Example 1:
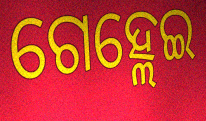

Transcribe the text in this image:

ଗେହ୍ଲେଇ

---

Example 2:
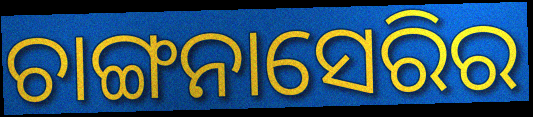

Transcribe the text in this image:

ଚାଙ୍ଗନାସେରିର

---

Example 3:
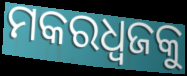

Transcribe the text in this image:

ମକରଧ୍ୱଜକୁ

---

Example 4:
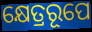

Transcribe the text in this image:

କ୍ଷେତ୍ରରୂପେ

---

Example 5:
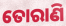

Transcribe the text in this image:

ତୋରାଣି